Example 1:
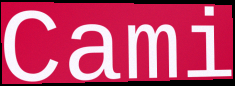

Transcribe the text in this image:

Cami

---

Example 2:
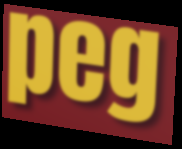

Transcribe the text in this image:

peg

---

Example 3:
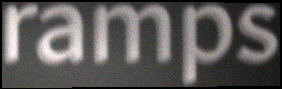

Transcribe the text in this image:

ramps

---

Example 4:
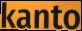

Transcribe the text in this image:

kanto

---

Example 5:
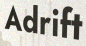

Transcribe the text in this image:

Adrift